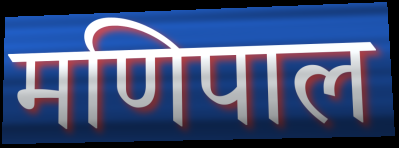
मणिपाल